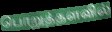
பொறுத்தளவில்